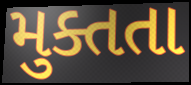
મુક્તતા